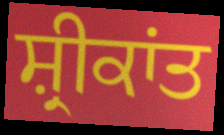
ਸ਼੍ਰੀਕਾਂਤ